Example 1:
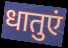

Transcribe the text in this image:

धातुएं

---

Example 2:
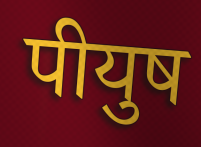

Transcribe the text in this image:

पीयुष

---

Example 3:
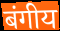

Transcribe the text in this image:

बंगीय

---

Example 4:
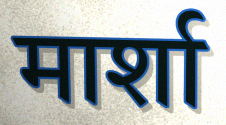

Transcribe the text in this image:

मार्शा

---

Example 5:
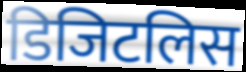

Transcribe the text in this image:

डिजिटलिस